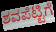
ಶವಪೆಟ್ಟಿಗೆ